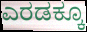
ಎರಡಕ್ಕೂ